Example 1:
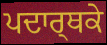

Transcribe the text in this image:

ਪਦਾਰ੍ਥਕੇ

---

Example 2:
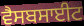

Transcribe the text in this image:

ਵੈਸਬਸਾਈਟ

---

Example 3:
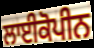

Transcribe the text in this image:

ਲਾਈਕੋਪੀਨ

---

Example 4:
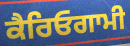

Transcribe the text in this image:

ਕੈਰਿਓਗਾਮੀ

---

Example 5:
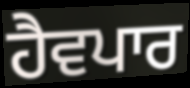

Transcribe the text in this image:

ਹੈਵਪਾਰ